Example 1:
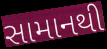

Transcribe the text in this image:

સામાનથી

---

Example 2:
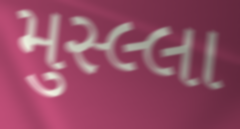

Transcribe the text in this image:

મુસ્લ્લા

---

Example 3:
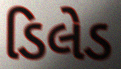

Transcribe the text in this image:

ડિલેડ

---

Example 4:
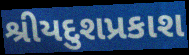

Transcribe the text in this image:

શ્રીયદુશપ્રકાશ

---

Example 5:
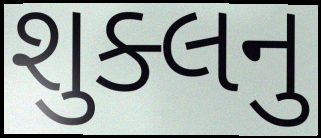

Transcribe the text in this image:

શુક્લનુ